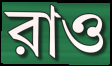
রাও